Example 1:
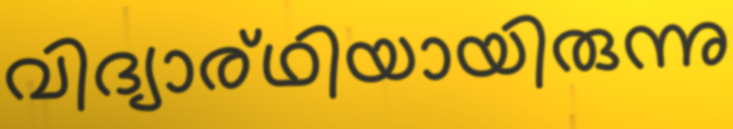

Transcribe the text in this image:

വിദ്യാര്ഥിയായിരുന്നു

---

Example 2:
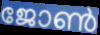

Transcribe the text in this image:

ജോൺ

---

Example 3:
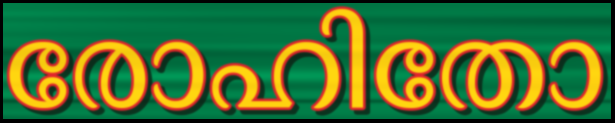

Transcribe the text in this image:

രോഹിതോ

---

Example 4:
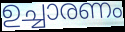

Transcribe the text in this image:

ഉച്ചാരണം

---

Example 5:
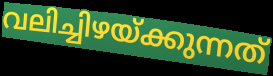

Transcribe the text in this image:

വലിച്ചിഴയ്ക്കുന്നത്